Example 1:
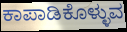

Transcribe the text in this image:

ಕಾಪಾಡಿಕೊಳ್ಳುವ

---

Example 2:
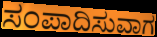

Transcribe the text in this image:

ಸಂಪಾದಿಸುವಾಗ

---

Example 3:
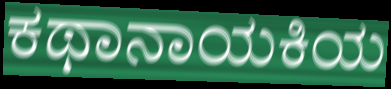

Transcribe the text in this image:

ಕಥಾನಾಯಕಿಯ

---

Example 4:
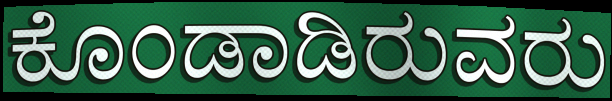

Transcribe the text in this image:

ಕೊಂಡಾಡಿರುವರು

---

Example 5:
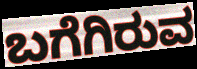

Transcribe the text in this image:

ಬಗೆಗಿರುವ